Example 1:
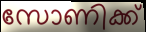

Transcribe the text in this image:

സോണിക്ക്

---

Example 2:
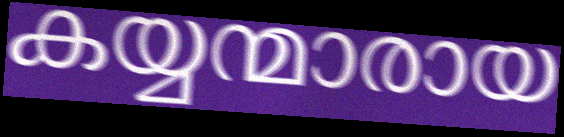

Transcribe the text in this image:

കയ്യന്മാരായ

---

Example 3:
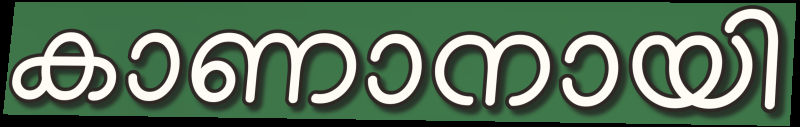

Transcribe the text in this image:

കാണാനായി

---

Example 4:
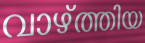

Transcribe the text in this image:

വാഴ്ത്തിയ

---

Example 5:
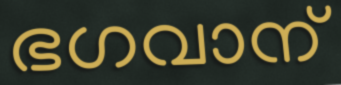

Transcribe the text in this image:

ഭഗവാന്